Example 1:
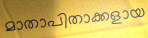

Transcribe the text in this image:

മാതാപിതാക്കളായ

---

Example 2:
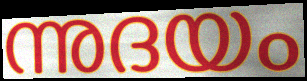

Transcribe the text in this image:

ന്നുദയം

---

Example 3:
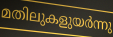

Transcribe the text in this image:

മതിലുകളുയർന്നു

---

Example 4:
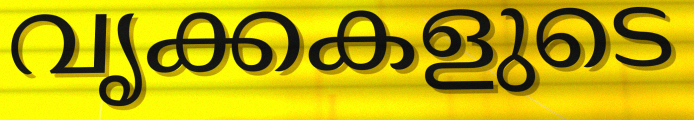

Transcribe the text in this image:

വൃക്കകളുടെ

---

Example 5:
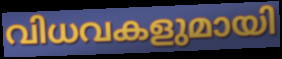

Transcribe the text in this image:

വിധവകളുമായി